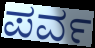
ಪರ್ವ